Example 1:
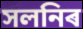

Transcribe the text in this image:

সলনিৰ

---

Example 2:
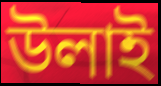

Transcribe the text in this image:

উলাই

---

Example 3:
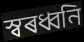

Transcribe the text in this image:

স্বৰধ্বনি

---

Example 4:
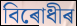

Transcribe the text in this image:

বিৰোধীৰ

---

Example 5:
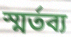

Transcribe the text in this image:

স্মৰ্তব্য